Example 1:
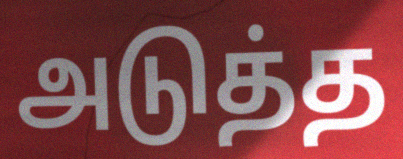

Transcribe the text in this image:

அடுத்த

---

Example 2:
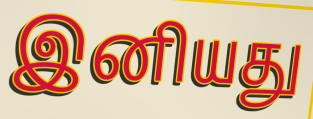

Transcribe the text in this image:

இனியது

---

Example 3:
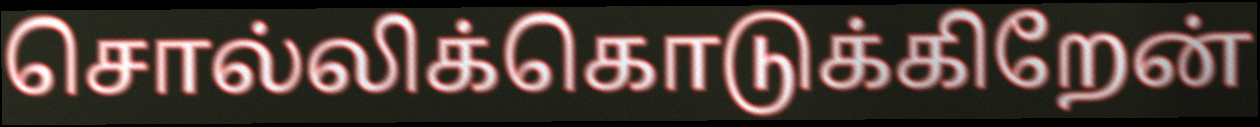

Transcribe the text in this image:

சொல்லிக்கொடுக்கிறேன்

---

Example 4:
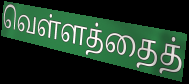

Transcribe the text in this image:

வெள்ளத்தைத்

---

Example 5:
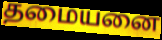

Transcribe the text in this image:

தமையனை